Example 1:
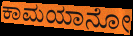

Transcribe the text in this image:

ಕಾಮಯಾನೋ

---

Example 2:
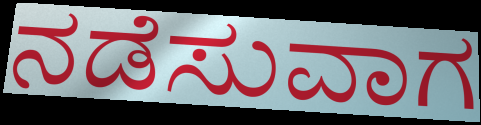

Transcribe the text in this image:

ನಡೆಸುವಾಗ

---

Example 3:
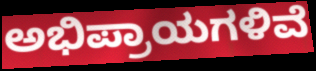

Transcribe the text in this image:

ಅಭಿಪ್ರಾಯಗಳಿವೆ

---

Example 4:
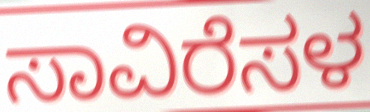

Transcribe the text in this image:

ಸಾವಿರೆಸಳ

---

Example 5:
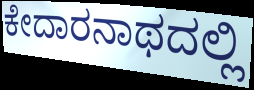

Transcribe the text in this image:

ಕೇದಾರನಾಥದಲ್ಲಿ